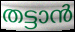
തട്ടാൻ